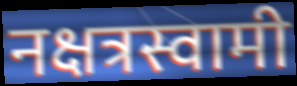
नक्षत्रस्वामी